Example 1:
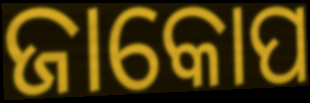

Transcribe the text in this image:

ଜାକୋପ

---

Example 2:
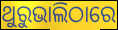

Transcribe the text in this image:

ଥୁରୁଭାଲିଠାରେ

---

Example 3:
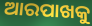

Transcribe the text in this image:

ଆରପାଖକୁ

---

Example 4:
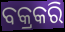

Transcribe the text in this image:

ବକ୍ରକରି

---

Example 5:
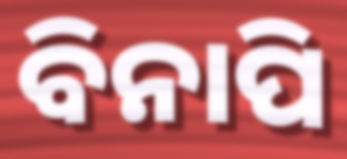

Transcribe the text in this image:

ବିନାପି